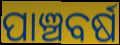
ପାଞ୍ଚବର୍ଷ